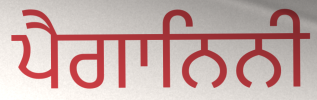
ਪੈਗਾਨਿਨੀ